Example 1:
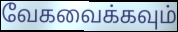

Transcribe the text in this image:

வேகவைக்கவும்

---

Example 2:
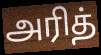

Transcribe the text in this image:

அரித்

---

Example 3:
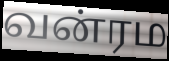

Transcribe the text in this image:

வன்ரம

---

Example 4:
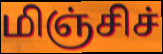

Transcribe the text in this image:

மிஞ்சிச்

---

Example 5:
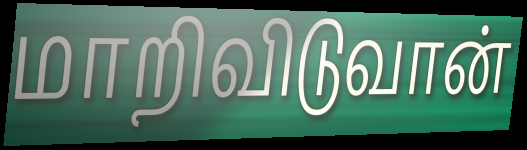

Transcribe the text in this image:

மாறிவிடுவான்